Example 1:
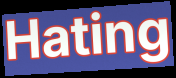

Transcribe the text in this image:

Hating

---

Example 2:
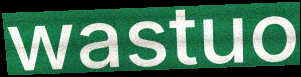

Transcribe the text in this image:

wastuo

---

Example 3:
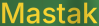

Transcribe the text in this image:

Mastak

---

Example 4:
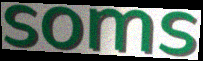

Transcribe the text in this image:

soms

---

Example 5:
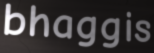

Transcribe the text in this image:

bhaggis